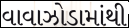
વાવાઝોડામાંથી